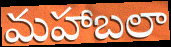
మహాబలా